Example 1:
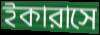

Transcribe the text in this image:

ইকারাসে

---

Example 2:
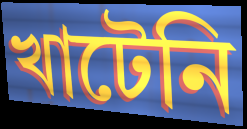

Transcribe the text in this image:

খাটেনি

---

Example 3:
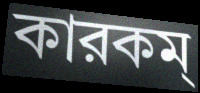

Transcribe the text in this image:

কারকম্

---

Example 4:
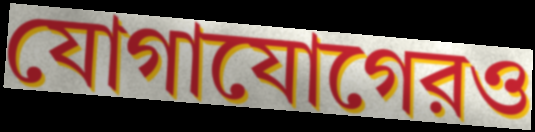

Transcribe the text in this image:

যোগাযোগেরও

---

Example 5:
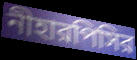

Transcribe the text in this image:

নীহারপিসির